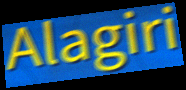
Alagiri